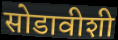
सोडावीशी